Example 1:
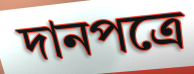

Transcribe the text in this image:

দানপত্রে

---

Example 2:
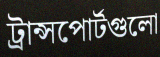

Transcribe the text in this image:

ট্রান্সপোর্টগুলো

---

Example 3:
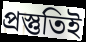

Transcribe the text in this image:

প্রস্তুতিই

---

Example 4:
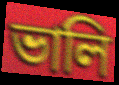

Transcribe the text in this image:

ভালি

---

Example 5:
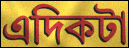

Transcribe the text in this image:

এদিকটা